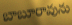
బాబూరావును